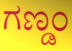
ಗಣ್ಡಂ